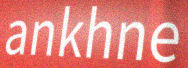
ankhne